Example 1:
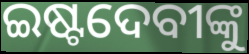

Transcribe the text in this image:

ଇଷ୍ଟଦେବୀଙ୍କୁ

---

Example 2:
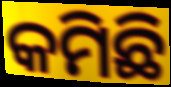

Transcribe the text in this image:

କମିଛି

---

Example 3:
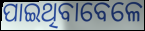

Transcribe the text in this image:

ପାଇଥିବାବେଳେ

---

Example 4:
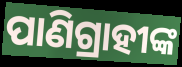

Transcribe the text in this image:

ପାଣିଗ୍ରାହୀଙ୍କ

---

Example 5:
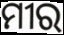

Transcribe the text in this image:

ମୀର